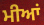
ਮੀਆਂ